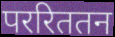
पररिततन